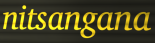
nitsangana